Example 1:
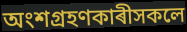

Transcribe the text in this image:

অংশগ্ৰহণকাৰীসকলে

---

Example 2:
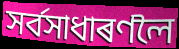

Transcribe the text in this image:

সৰ্বসাধাৰণলৈ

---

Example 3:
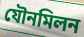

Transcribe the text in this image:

যৌনমিলন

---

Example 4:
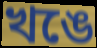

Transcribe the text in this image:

খঙে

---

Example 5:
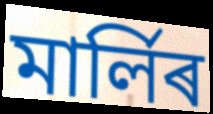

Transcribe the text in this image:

মাৰ্লিৰ